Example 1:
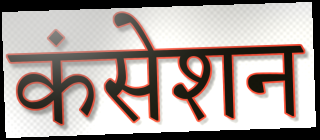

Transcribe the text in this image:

कंसेशन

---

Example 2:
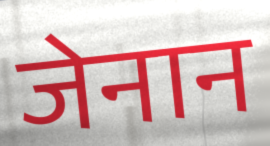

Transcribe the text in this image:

जेनान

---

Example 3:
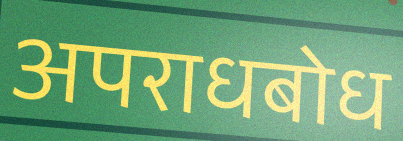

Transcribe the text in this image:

अपराधबोध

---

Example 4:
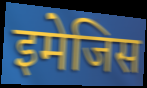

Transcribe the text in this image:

इमेजिस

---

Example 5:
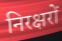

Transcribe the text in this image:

निरक्षरों